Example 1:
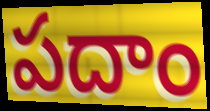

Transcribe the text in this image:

పదాం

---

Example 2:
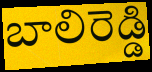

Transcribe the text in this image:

బాలిరెడ్డి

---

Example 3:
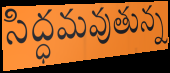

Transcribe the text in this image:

సిద్ధమవుతున్న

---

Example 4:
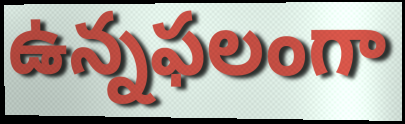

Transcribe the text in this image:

ఉన్నఫలంగా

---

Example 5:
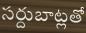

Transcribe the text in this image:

సర్దుబాట్లతో